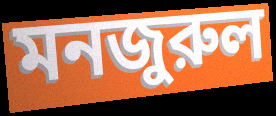
মনজুরুল